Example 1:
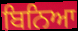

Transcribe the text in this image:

ਬਿਨਿਆ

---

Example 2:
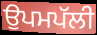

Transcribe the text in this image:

ਉਪਮਪੱਲੀ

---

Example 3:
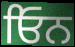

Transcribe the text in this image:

ਓਿਨ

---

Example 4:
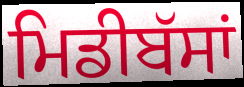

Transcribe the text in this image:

ਮਿਡੀਬੱਸਾਂ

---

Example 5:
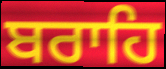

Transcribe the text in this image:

ਬਰਾਹਿ